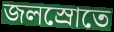
জলস্রোতে